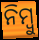
ନିମ୍ବୁ